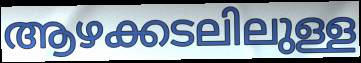
ആഴക്കടലിലുള്ള